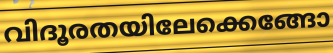
വിദൂരതയിലേക്കെങ്ങോ